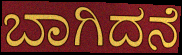
ಬಾಗಿದನೆ